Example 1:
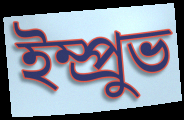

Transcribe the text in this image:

ইম্প্রুভ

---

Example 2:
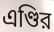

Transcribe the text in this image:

এণ্ডির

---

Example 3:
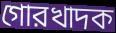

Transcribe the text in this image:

গোরখাদক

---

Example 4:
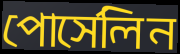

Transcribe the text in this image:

পোর্সেলিন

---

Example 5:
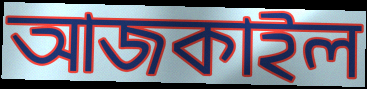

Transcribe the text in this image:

আজকাইল